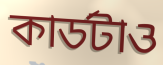
কার্ডটাও